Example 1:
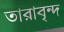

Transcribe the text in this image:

তারাবৃন্দ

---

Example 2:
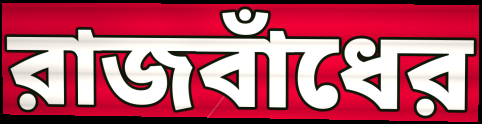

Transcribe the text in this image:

রাজবাঁধের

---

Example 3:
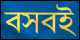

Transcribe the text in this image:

বসবই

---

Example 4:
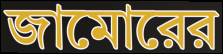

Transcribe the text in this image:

জামোরের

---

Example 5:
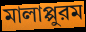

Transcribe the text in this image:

মালাপ্পুরম